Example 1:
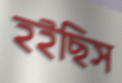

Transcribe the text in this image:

হইছিস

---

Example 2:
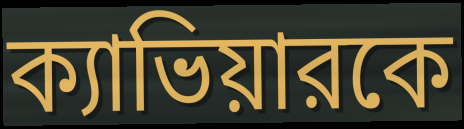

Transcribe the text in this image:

ক্যাভিয়ারকে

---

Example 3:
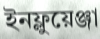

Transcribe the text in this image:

ইনফ্লুয়েঞ্জা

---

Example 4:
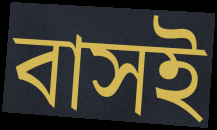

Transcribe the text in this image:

বাসই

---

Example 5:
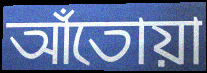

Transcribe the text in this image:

আঁতোয়া